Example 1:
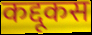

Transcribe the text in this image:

कद्दूकस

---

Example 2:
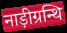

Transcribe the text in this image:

नाड़ीग्रन्थि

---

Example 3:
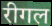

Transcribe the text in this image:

रीगल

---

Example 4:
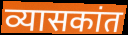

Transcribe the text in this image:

व्यासकांत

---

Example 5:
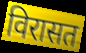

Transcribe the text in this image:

विरासत